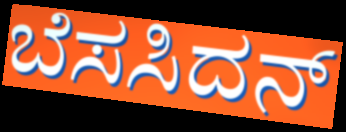
ಬೆಸಸಿದನ್